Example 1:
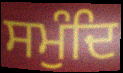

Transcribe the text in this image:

ਸਮੁੰਦਿ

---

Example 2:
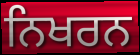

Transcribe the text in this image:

ਨਿਖਰਨ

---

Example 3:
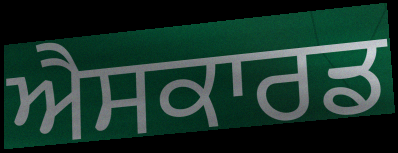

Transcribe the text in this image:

ਐਸਕਾਰਡ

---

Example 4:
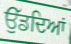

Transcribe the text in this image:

ਉੱਡਦਿਆਂ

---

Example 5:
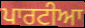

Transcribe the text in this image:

ਪਾਰਟੀਆ